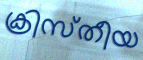
ക്രിസ്‌തീയ